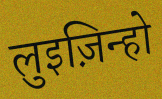
लुइज़िन्हो